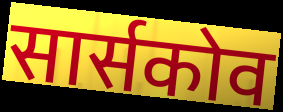
सार्सकोव